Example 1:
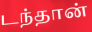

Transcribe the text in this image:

டந்தான்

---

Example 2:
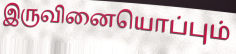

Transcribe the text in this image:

இருவினையொப்பும்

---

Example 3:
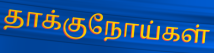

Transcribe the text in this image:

தாக்குநோய்கள்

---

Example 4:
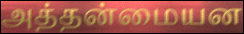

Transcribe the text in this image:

அத்தன்மையன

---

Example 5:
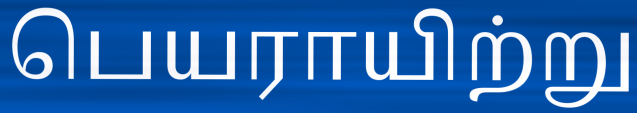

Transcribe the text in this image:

பெயராயிற்று